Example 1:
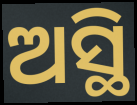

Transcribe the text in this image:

ଅସ୍ଥି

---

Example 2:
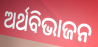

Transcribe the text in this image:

ଅର୍ଥବିଭାଜନ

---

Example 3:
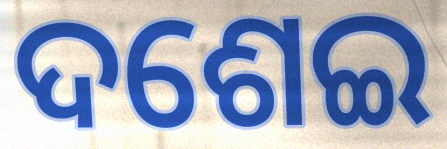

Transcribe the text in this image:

ଦଶେଇ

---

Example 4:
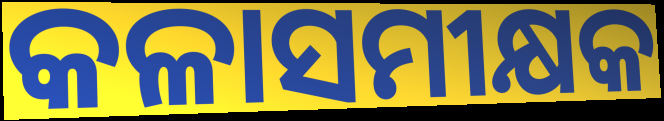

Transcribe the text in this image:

କଳାସମୀକ୍ଷକ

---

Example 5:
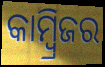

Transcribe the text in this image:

କାମ୍ବ୍ରିଜର